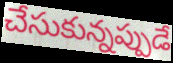
చేసుకున్నప్పుడే